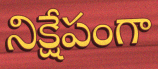
నిక్షేపంగా